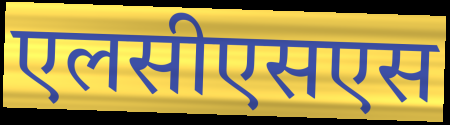
एलसीएसएस